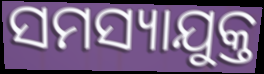
ସମସ୍ୟାଯୁକ୍ତ